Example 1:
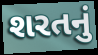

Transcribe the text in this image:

શરતનું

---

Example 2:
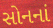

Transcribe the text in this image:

સોનનાં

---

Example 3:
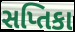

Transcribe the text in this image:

સપ્તિકા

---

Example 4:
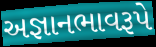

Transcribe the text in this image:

અજ્ઞાનભાવરૂપે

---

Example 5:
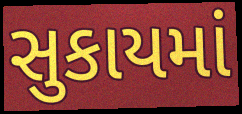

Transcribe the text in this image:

સુકાયમાં